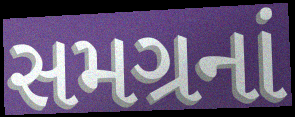
સમગ્રનાં